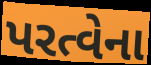
પરત્વેના